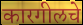
कारगीलचे